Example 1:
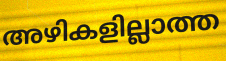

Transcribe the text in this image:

അഴികളില്ലാത്ത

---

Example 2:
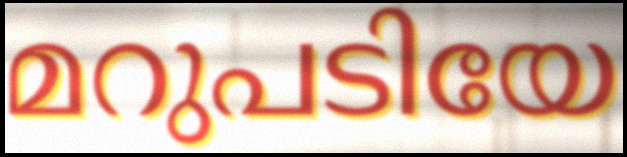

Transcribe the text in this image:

മറുപടിയേ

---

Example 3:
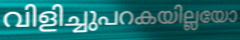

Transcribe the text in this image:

വിളിച്ചുപറകയില്ലയോ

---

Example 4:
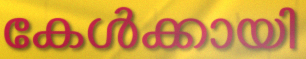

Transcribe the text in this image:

കേൾക്കായി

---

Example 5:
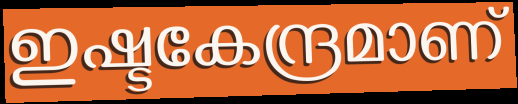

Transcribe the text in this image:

ഇഷ്ടകേന്ദ്രമാണ്